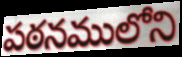
పఠనములోని